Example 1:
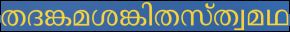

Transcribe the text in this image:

തദങ്കമശങ്കിതസ്ത്വമഥ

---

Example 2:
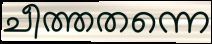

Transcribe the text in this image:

ചീത്തതന്നെ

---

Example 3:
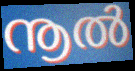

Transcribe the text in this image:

നൂൽ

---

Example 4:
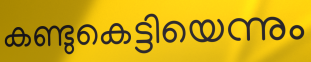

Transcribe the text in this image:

കണ്ടുകെട്ടിയെന്നും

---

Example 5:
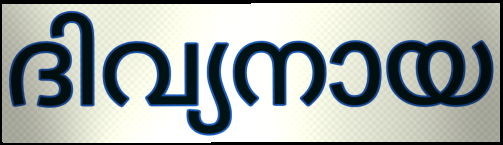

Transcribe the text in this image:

ദിവ്യനായ